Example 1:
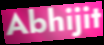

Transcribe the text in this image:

Abhijit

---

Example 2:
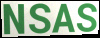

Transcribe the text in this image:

NSAS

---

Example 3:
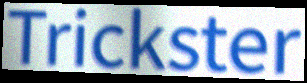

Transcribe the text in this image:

Trickster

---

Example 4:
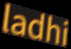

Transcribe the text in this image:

ladhi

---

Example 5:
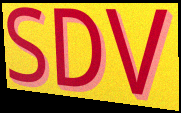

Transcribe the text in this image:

SDV